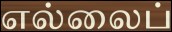
எல்லைப்